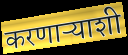
करणाऱ्याशी